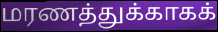
மரணத்துக்காகக்